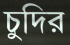
চুদির